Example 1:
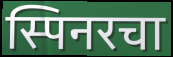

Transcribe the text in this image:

स्पिनरचा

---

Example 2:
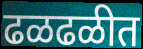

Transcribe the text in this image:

ढळढळीत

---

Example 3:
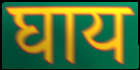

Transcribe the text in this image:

घाय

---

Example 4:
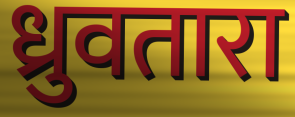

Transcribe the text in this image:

ध्रुवतारा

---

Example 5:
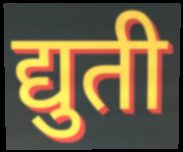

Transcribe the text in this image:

द्युती